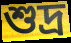
শুদ্র